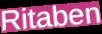
Ritaben